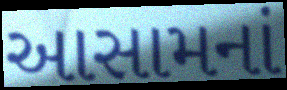
આસામનાં